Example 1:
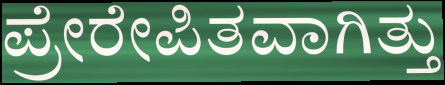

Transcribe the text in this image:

ಪ್ರೇರೇಪಿತವಾಗಿತ್ತು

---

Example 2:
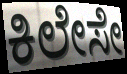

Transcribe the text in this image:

ಕಿಲೇಸೇ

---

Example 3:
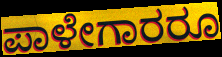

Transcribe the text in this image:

ಪಾಳೇಗಾರರೂ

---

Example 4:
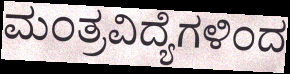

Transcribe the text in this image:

ಮಂತ್ರವಿದ್ಯೆಗಳಿಂದ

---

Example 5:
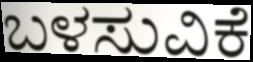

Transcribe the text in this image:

ಬಳಸುವಿಕೆ